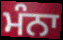
ਮੰਨਾ